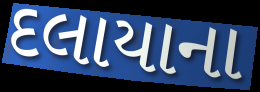
દલાયાના